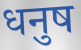
धनुष